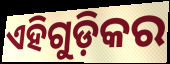
ଏହିଗୁଡ଼ିକର